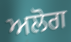
ਅਲੋਗ